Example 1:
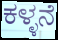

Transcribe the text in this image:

ಕಳ್ಳನೆ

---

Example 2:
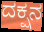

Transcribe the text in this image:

ದಕ್ಷನ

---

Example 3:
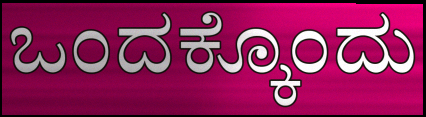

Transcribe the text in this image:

ಒಂದಕ್ಕೊಂದು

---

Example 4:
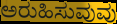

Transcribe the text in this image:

ಅರುಹಿಸುವುವು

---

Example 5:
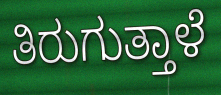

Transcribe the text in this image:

ತಿರುಗುತ್ತಾಳೆ